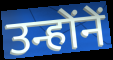
उन्होंनें